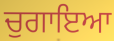
ਚੁਗਾਇਆ